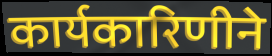
कार्यकारिणीने